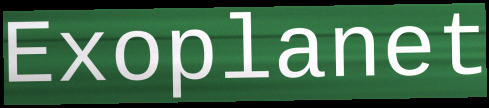
Exoplanet